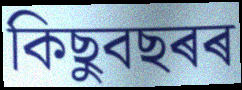
কিছুবছৰৰ